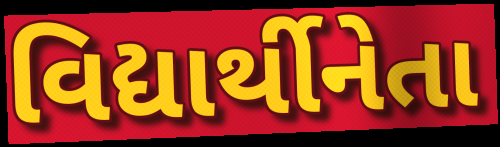
વિદ્યાર્થીનેતા